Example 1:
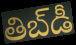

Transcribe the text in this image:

తిబ్‌డీ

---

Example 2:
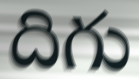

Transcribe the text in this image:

దిగు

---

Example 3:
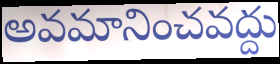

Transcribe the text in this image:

అవమానించవద్దు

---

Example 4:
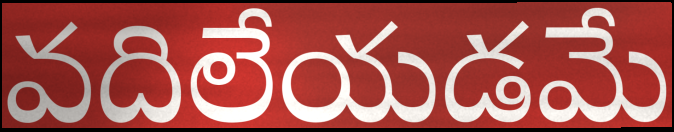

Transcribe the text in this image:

వదిలేయడమే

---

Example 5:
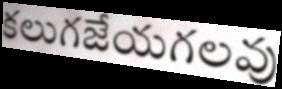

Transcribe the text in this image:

కలుగజేయగలవు